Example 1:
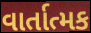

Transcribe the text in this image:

વાર્તાત્મક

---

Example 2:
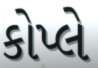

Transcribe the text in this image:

કોપ્લે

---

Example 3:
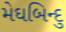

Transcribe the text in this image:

મેઘબિન્દુ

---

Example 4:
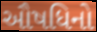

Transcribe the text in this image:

ઔષધિનો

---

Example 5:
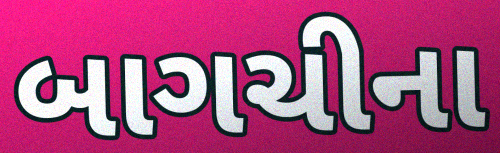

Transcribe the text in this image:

બાગચીના